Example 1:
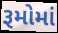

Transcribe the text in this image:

રૂમોમાં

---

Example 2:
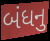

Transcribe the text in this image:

બંધનુ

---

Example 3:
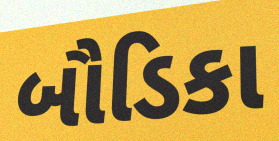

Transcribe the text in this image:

બૌડિકા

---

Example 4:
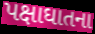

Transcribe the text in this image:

પક્ષાઘાતના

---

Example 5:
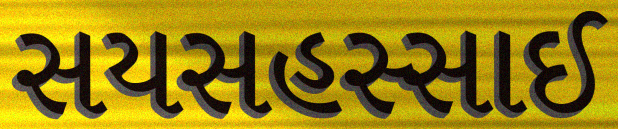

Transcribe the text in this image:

સયસહસ્સાઈ